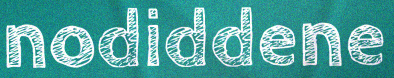
nodiddene